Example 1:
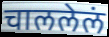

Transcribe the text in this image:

चाललेलं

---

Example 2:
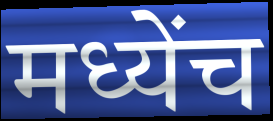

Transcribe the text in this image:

मध्येंच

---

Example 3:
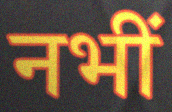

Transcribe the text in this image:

नभीं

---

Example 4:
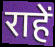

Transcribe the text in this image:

राहें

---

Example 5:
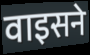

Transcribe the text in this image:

वाइसने